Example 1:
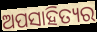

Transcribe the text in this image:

ଅପସାହିତ୍ୟର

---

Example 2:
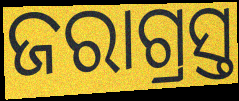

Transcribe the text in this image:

ଜରାଗ୍ରସ୍ତ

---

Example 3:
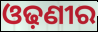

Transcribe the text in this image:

ଓଢ଼ଣୀର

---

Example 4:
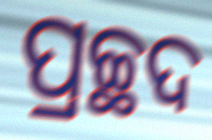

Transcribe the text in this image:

ପ୍ରଚ୍ଛଦ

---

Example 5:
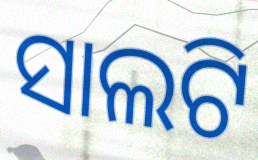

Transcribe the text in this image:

ସାଲଟି